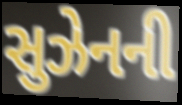
સુઝેનની